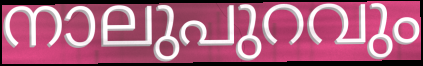
നാലുപുറവും